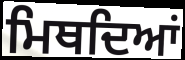
ਮਿਥਦਿਆਂ